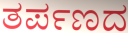
ತರ್ಪಣದ